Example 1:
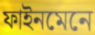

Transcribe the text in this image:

ফাইনমেনে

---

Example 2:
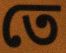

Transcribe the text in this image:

তে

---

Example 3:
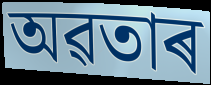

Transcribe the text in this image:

অৱতাৰ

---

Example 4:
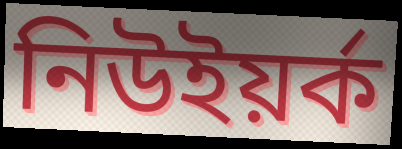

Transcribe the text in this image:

নিউইয়ৰ্ক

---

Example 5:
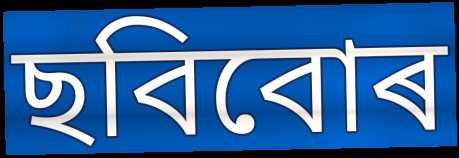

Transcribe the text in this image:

ছবিবোৰ